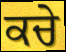
ਕਚੇ